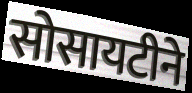
सोसायटीने